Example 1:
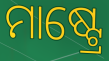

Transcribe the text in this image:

ମାଷ୍ଟ୍ରେ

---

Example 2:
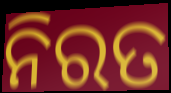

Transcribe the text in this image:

ନିରତ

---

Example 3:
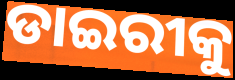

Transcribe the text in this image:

ଡାଇରୀକୁ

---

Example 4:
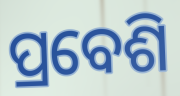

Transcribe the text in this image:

ପ୍ରବେଶି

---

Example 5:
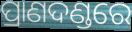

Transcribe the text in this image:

ପ୍ରାଣଦଣ୍ଡରେ